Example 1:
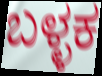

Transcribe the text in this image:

ಬಳ್ಳಕ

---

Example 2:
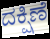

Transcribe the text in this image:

ದಕ್ಷಿಣೆ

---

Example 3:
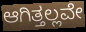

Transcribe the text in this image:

ಆಗಿತ್ತಲ್ಲವೇ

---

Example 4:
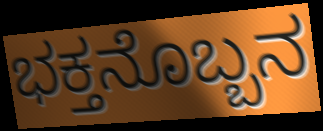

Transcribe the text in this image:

ಭಕ್ತನೊಬ್ಬನ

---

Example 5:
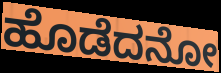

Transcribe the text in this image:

ಹೊಡೆದನೋ